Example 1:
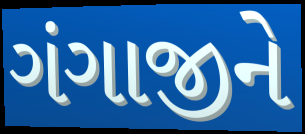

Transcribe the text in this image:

ગંગાજીને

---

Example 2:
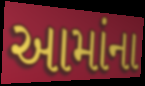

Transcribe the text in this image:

આમાંના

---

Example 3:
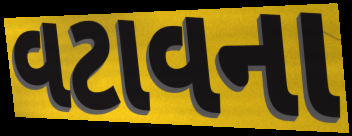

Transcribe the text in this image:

વટાવના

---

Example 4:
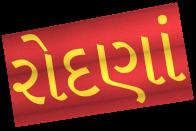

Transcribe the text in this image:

રોદણાં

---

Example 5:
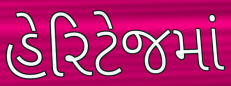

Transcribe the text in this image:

હેરિટેજમાં